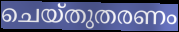
ചെയ്തുതരണം